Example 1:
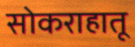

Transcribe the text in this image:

सोकराहातू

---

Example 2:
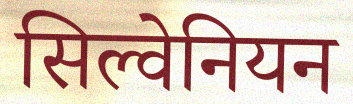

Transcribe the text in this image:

सिल्वेनियन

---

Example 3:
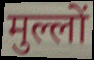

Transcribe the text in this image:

मुल्लों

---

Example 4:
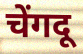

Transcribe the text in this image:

चेंगदू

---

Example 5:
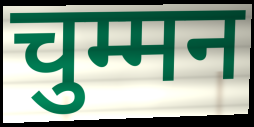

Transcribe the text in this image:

चुम्मन